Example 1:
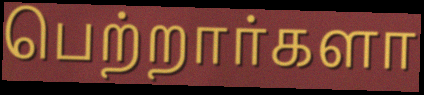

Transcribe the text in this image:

பெற்றார்களா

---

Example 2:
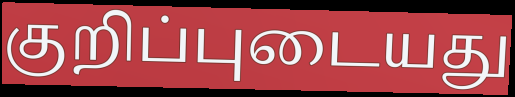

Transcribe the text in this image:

குறிப்புடையது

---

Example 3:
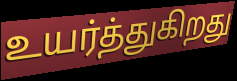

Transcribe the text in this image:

உயர்த்துகிறது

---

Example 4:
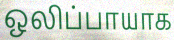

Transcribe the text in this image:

ஒலிப்பாயாக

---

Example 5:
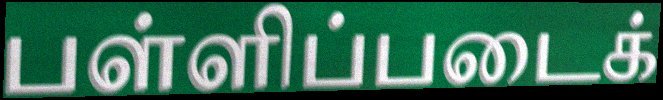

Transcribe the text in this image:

பள்ளிப்படைக்